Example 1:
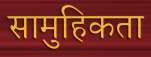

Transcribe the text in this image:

सामुहिकता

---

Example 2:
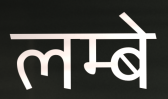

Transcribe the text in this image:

लम्बे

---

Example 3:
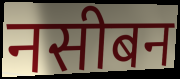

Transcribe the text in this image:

नसीबन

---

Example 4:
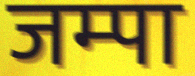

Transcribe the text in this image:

जम्पा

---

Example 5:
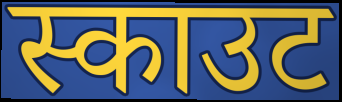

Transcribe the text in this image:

स्काउट